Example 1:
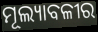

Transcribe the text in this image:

ମୂଲ୍ୟାବଳୀର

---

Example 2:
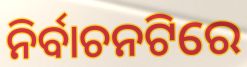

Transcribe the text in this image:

ନିର୍ବାଚନଟିରେ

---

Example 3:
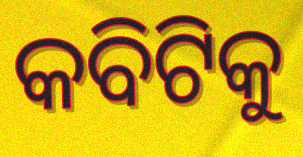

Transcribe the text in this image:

କବିଟିକୁ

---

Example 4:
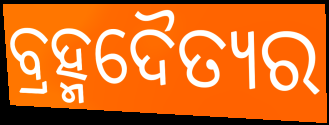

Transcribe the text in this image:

ବ୍ରହ୍ମଦୈତ୍ୟର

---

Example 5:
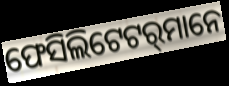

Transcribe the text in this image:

ଫେସିଲିଟେଟର୍‌ମାନେ